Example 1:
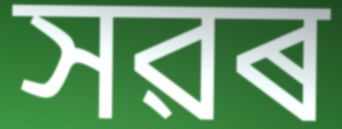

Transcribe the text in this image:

সৱৰ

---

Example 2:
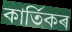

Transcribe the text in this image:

কাৰ্তিকৰ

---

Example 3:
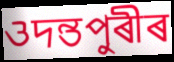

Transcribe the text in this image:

ওদন্তপুৰীৰ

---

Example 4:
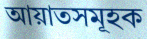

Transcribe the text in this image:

আয়াতসমূহক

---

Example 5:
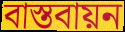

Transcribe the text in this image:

বাস্তবায়ন